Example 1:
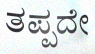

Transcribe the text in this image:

ತಪ್ಪದೇ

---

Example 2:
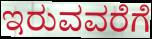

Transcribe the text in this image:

ಇರುವವರೆಗೆ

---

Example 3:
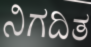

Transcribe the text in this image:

ನಿಗದಿತ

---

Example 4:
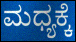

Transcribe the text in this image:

ಮಧ್ಯಕ್ಕೆ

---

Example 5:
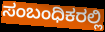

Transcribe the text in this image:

ಸಂಬಂಧಿಕರಲ್ಲಿ